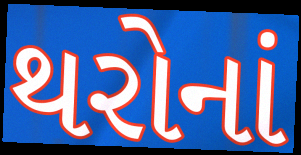
થરોનાં